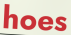
hoes